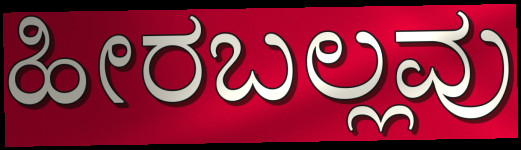
ಹೀರಬಲ್ಲವು